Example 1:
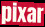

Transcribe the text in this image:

pixar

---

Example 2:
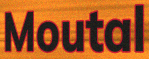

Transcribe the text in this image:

Moutal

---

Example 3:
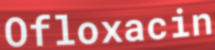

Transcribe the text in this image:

Ofloxacin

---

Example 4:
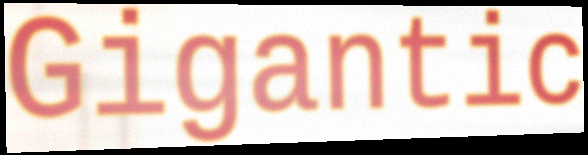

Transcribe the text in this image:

Gigantic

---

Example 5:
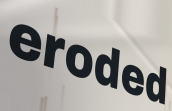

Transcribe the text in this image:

eroded